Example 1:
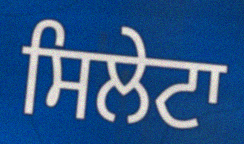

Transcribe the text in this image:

ਸਿਲੇਟਾ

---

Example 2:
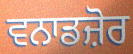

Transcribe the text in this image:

ਵਨਾਡਜ਼ੋਰ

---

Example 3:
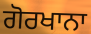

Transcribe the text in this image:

ਗੋਰਖਾਨਾ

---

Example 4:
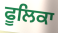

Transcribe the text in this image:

ਫੂਲਿਕਾ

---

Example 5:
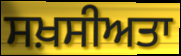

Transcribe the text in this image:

ਸਖ਼ਸੀਅਤਾ